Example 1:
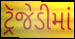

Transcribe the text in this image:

ટ્રૅજેડીમાં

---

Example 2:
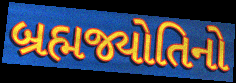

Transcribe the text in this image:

બ્રહ્મજ્યોતિનો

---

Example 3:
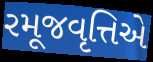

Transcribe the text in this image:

રમૂજવૃત્તિએ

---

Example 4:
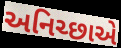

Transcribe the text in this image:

અનિચ્છાએ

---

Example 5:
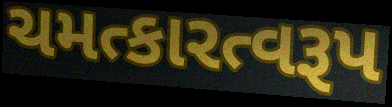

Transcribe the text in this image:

ચમત્કારત્વરૂપ